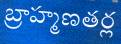
బ్రాహ్మణతర్ల